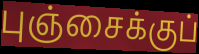
புஞ்சைக்குப்